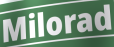
Milorad